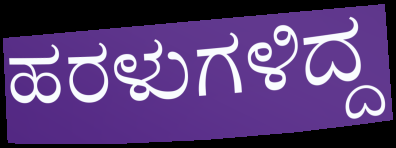
ಹರಳುಗಳಿದ್ದ